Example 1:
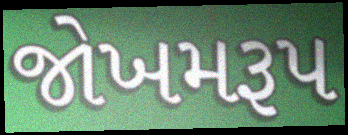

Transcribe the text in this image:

જોખમરૂપ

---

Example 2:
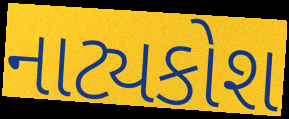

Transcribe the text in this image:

નાટ્યકોશ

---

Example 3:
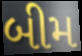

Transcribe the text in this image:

બીમ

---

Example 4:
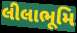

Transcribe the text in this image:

લીલાભૂમિ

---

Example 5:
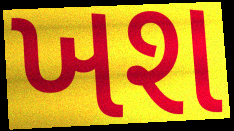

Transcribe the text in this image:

ખશ